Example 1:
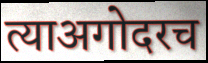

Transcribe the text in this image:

त्याअगोदरच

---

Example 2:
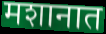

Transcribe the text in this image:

मशानात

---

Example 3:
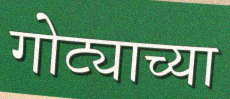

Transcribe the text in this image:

गोट्याच्या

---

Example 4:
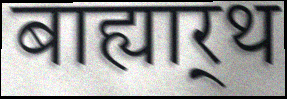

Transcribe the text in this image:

बाह्यार्थ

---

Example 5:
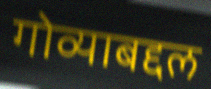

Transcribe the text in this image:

गोव्याबद्दल